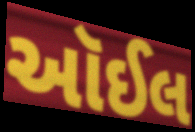
આૅઈલ